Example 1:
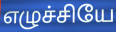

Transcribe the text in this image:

எழுச்சியே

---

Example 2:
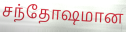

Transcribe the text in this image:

சந்தோஷமான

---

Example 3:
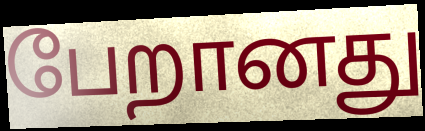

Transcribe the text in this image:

பேறானது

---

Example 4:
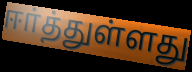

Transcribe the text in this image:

ஈர்த்துள்ளது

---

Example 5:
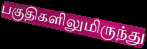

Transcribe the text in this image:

பகுதிகளிலுமிருந்து